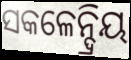
ସକଳେନ୍ଦ୍ରିୟ